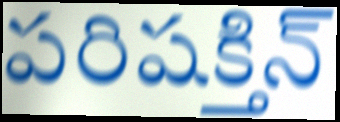
పరిషక్తిన్